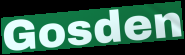
Gosden